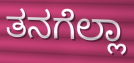
ತನಗೆಲ್ಲಾ